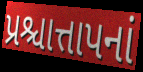
પ્રશ્ચાત્તાપનાં